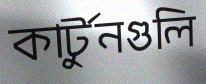
কার্টুনগুলি